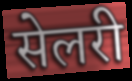
सेलरी